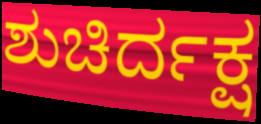
ಶುಚಿರ್ದಕ್ಷ